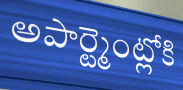
అపార్ట్మెంట్లోకి